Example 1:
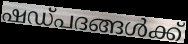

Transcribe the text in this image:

ഷഡ്പദങ്ങൾക്ക്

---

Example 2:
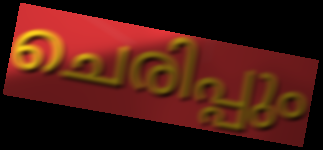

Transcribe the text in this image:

ചെരിപ്പും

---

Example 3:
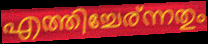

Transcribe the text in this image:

എത്തിച്ചേര്ന്നതും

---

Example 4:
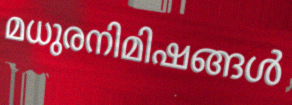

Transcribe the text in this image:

മധുരനിമിഷങ്ങൾ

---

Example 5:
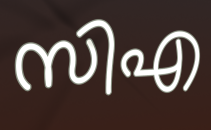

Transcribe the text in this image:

സിഎ